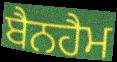
ਬੈਨਹੈਮ